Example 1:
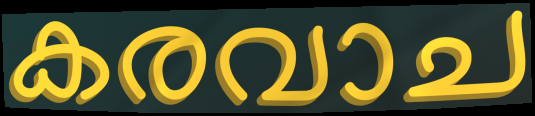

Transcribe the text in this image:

കരവാച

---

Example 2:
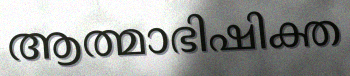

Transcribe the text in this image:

ആത്മാഭിഷിക്ത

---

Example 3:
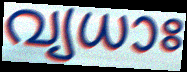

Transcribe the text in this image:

വ്യധാഃ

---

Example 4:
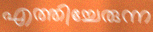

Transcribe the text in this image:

എത്തിച്ചേരുന്ന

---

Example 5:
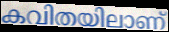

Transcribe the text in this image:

കവിതയിലാണ്